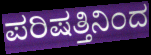
ಪರಿಷತ್ತಿನಿಂದ